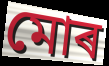
মোৰ